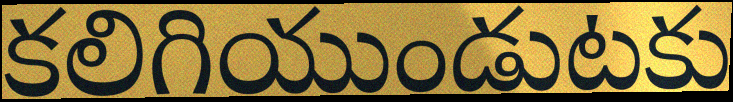
కలిగియుండుటకు